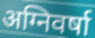
अग्निवर्षा